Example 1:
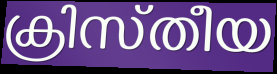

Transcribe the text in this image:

ക്രിസ്‌തീയ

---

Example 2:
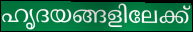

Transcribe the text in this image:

ഹൃദയങ്ങളിലേക്ക്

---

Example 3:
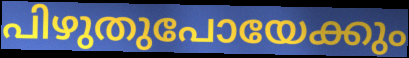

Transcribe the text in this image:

പിഴുതുപോയേക്കും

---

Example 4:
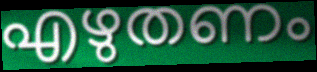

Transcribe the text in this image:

എഴുതണം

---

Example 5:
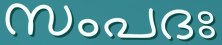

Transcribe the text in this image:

സംപദഃ